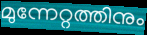
മുന്നേറ്റത്തിനും